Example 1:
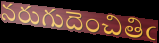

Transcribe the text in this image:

నరుగుదెంచితిఁ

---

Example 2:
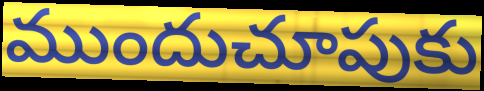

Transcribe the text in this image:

ముందుచూపుకు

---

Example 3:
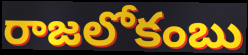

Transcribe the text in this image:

రాజలోకంబు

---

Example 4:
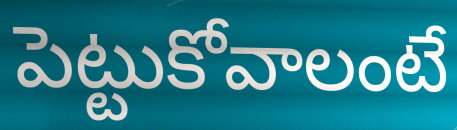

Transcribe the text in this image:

పెట్టుకోవాలంటే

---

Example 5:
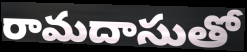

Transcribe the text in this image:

రామదాసుతో